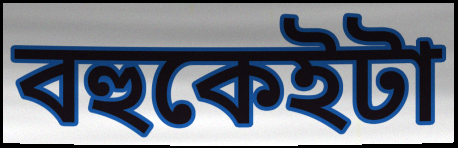
বহুকেইটা